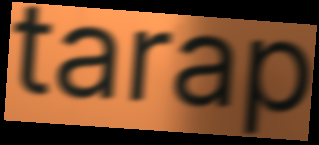
tarap